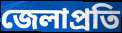
জেলাপ্রতি